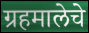
ग्रहमालेचे